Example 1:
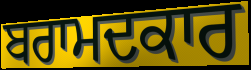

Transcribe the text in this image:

ਬਰਾਮਦਕਾਰ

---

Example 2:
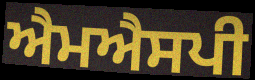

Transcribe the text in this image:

ਐਮਐਸਪੀ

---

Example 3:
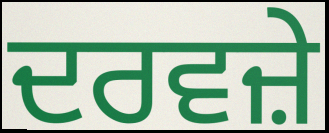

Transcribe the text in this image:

ਦਰਵਜ਼ੇ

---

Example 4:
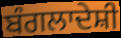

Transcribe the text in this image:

ਬੰਗਲਾਦੇਸ਼ੀ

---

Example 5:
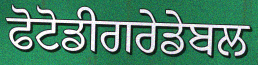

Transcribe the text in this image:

ਫੋਟੋਡੀਗਰੇਡੇਬਲ